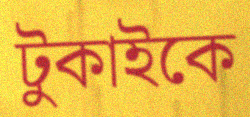
টুকাইকে